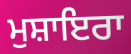
ਮੁਸ਼ਾਇਰਾ